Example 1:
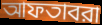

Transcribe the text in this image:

আফতাবরা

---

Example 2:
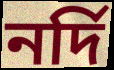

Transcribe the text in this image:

নর্দি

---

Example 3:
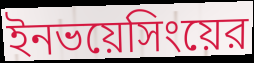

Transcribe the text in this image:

ইনভয়েসিংয়ের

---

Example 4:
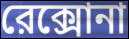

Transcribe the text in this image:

রেক্সোনা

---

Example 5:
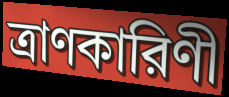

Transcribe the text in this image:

ত্রাণকারিণী